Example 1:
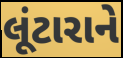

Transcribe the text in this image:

લૂંટારાને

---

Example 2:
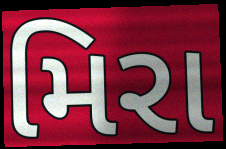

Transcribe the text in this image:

મિરા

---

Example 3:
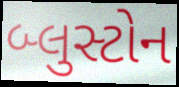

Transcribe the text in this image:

બ્લુસ્ટોન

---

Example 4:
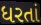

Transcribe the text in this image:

ધરતાં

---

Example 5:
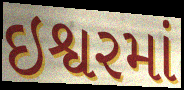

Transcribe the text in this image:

ઇશ્વરમાં